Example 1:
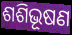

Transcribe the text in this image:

ଶଶିଭୂଷଣ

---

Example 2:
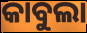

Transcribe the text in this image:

କାବୁଲା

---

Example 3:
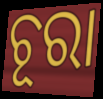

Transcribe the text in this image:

ଚୂରା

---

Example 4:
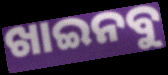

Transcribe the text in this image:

ଖାଇନବୁ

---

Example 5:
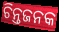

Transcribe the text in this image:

ଚିନ୍ତଜନକ